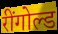
रींगोल्ड